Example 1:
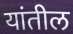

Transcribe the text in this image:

यांतील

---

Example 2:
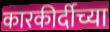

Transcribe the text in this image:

कारकीर्दीच्या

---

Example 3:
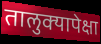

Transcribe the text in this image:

तालुक्यापेक्षा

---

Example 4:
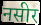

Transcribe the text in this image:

नसीर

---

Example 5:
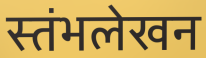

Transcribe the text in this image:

स्तंभलेखन